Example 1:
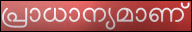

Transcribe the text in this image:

പ്രാധാന്യമാണ്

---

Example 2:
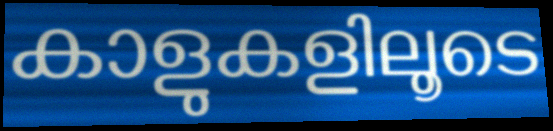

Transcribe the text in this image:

കാളുകളിലൂടെ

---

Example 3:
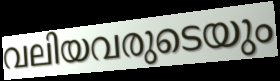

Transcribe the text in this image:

വലിയവരുടെയും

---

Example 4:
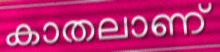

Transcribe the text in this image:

കാതലാണ്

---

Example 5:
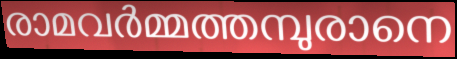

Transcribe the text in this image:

രാമവർമ്മത്തമ്പുരാനെ